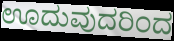
ಊದುವುದರಿಂದ